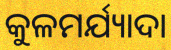
କୁଳମର୍ଯ୍ୟାଦା